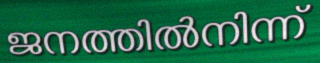
ജനത്തിൽനിന്ന്